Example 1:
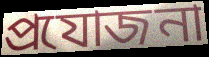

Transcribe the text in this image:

প্রযোজনা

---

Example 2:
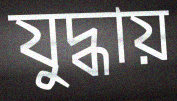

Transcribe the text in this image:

যুদ্ধায়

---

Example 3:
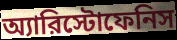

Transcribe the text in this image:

অ্যারিস্টোফেনিস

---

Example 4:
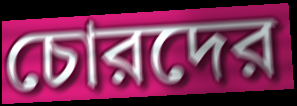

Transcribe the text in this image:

চোরদের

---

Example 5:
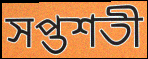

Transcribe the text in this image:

সপ্তশতী